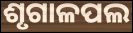
ଶୃଗାଳପଲ